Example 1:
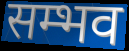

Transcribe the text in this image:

सम्भव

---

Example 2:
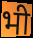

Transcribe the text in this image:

भी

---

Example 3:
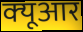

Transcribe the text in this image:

क्यूआर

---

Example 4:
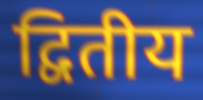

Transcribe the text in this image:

द्वितीय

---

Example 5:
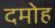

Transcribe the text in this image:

दमोह